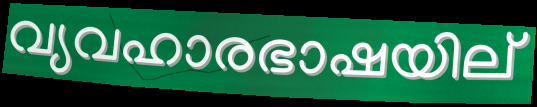
വ്യവഹാരഭാഷയില്